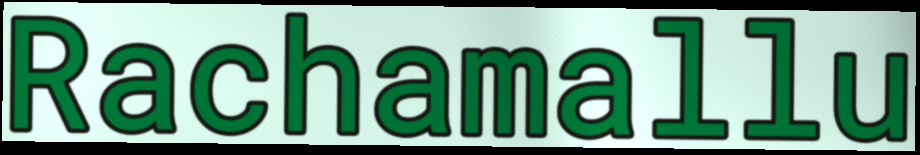
Rachamallu